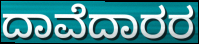
ದಾವೆದಾರರ